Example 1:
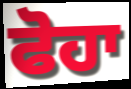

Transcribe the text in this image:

ਫੋਹਾ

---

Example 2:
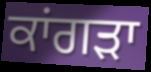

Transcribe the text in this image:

ਕਾਂਗੜਾ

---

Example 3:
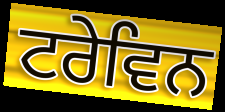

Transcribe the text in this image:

ਟਰੇਵਿਨ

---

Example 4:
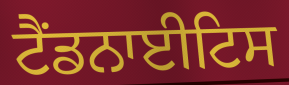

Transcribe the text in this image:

ਟੈਂਡਨਾਈਟਿਸ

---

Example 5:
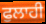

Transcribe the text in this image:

ਫੁਲਾਹੀ